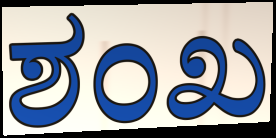
ಶಂಖ